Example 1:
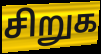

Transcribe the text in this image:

சிறுக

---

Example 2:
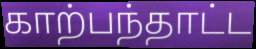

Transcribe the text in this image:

காற்பந்தாட்ட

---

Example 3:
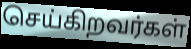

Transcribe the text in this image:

செய்கிறவர்கள்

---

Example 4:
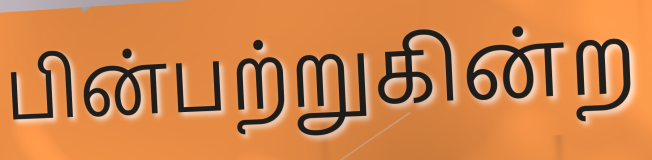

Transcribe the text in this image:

பின்பற்றுகின்ற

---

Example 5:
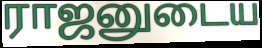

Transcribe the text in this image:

ராஜனுடைய